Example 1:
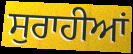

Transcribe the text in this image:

ਸੁਰਾਹੀਆਂ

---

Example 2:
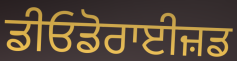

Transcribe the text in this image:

ਡੀਓਡੋਰਾਈਜ਼ਡ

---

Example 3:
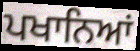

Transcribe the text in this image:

ਪਖਾਨਿਆਂ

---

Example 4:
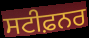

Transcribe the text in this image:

ਸਟੀਫ਼ਨਰ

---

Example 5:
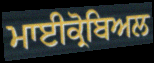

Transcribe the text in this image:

ਮਾਈਕ੍ਰੋਬਿਅਲ